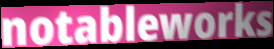
notableworks